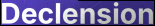
Declension